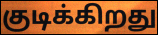
குடிக்கிறது